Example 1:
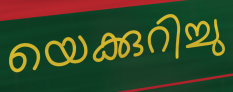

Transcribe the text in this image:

യെക്കുറിച്ചു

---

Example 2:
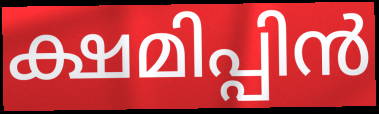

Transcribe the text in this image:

ക്ഷമിപ്പിൻ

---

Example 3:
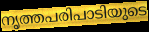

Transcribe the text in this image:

നൃത്തപരിപാടിയുടെ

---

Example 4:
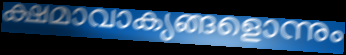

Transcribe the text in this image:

ക്ഷമാവാക്യങ്ങളൊന്നും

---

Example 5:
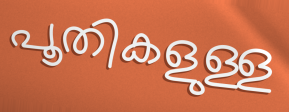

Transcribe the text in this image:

പൂതികളുള്ള